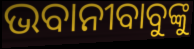
ଭବାନୀବାବୁଙ୍କୁ